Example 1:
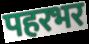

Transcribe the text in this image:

पहरभर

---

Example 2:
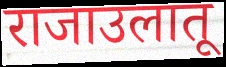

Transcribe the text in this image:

राजाउलातू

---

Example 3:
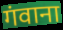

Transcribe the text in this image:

गंवाना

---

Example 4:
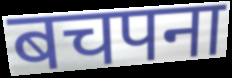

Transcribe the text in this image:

बचपना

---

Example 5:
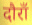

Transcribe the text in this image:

दौराँ